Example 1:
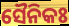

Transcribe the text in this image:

ସୈନିକଃ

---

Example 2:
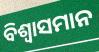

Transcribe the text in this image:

ବିଶ୍ଵାସମାନ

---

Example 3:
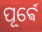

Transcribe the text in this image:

ପୂର୍ଵେ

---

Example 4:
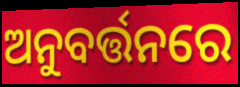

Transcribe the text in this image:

ଅନୁବର୍ତ୍ତନରେ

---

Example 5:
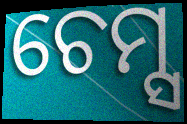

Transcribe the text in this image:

ଚେମ୍ସ